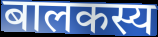
बालकस्य